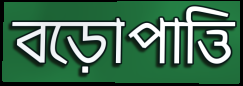
বড়োপাত্তি